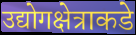
उद्योगक्षेत्राकडे